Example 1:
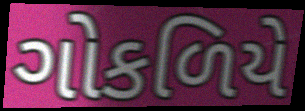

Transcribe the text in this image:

ગોકળિયે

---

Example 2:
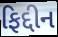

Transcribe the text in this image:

ફિદ્દીન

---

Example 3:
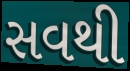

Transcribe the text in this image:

સવથી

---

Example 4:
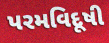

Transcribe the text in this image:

પરમવિદૂષી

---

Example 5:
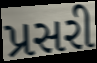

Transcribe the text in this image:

પ્રસરી